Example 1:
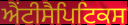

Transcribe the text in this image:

ਐਂਟੀਸੈਪਿਟਿਕਸ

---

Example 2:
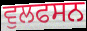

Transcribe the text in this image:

ਵੁਲਫਸਨ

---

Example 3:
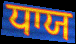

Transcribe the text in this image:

ਧਾਯ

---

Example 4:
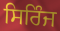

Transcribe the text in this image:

ਸਿਰਿੰਜ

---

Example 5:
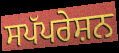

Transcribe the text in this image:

ਸਪੱਪਰੇਸ਼ਨ